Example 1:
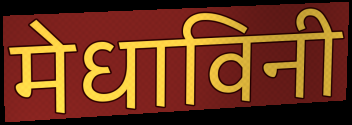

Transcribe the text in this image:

मेधाविनी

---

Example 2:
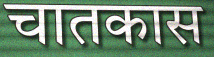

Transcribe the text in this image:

चातकास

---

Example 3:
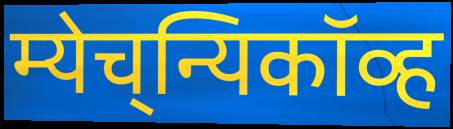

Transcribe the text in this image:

म्येच्‌न्यिकॉव्ह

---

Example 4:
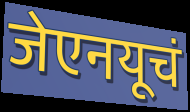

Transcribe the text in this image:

जेएनयूचं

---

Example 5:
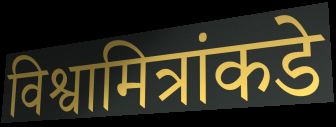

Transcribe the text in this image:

विश्वामित्रांकडे